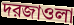
দরজাওলা